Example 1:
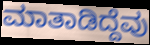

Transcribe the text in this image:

ಮಾತಾಡಿದ್ದೆವು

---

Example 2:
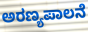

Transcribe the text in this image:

ಅರಣ್ಯಪಾಲನೆ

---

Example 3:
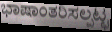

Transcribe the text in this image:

ಭಾಷಾಂತರಿಸಲ್ಪಟ್ಟ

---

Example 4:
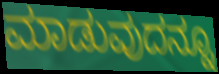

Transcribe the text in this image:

ಮಾಡುವುದನ್ನೂ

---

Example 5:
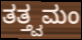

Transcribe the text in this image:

ತತ್ತ್ವಮಂ